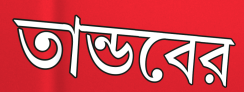
তান্ডবের